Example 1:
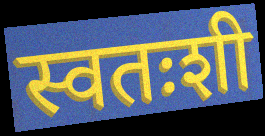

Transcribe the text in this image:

स्वतःशी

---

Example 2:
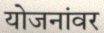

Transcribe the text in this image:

योजनांवर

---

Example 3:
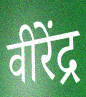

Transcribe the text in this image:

वीरेंद्र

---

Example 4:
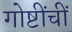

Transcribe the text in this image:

गोष्टींचीं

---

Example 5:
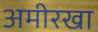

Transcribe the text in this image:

अमीरखा